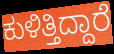
ಕುಳಿತ್ತಿದ್ದಾರೆ